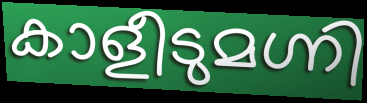
കാളീടുമഗ്നി